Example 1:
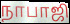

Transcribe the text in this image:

நாபாஜி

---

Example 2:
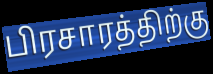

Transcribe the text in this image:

பிரசாரத்திற்கு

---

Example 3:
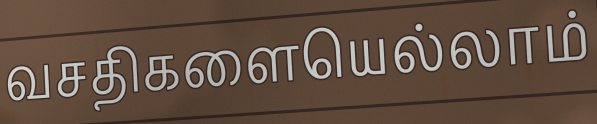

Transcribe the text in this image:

வசதிகளையெல்லாம்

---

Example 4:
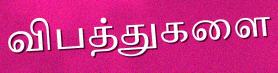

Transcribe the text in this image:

விபத்துகளை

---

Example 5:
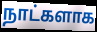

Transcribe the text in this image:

நாட்களாக